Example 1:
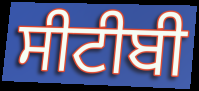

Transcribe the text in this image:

ਸੀਟੀਬੀ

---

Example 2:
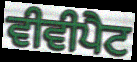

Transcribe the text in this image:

ਵੀਵੀਪੈਟ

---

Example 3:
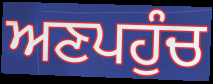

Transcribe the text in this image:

ਅਣਪਹੁੰਚ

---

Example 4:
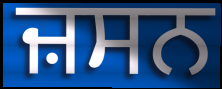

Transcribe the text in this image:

ਜ਼ਸਨ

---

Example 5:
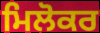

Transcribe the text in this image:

ਮਿਲੋਕਰ